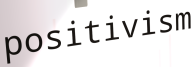
positivism